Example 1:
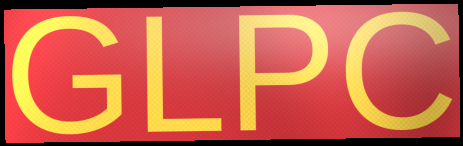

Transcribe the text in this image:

GLPC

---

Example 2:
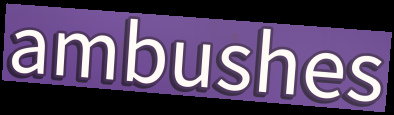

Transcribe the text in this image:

ambushes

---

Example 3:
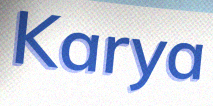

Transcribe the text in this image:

Karya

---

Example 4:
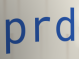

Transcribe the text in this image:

prd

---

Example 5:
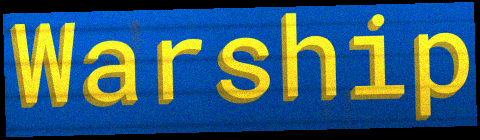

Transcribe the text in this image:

Warship